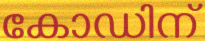
കോഡിന്